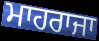
ਮਾਹਰਾਜਾ